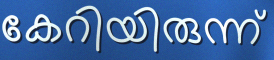
കേറിയിരുന്ന്